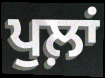
ਪੁਲ਼ਾਂ